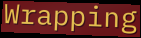
Wrapping